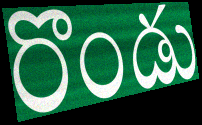
రొండు